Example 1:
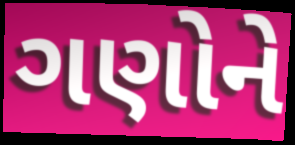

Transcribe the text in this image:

ગણોને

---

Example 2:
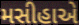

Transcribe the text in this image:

મસીહાએ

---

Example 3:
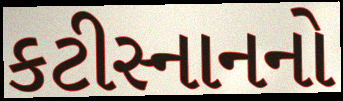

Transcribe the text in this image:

કટીસ્નાનનો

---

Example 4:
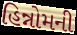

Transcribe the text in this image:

હિન્નોમની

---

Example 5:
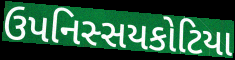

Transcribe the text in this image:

ઉપનિસ્સયકોટિયા